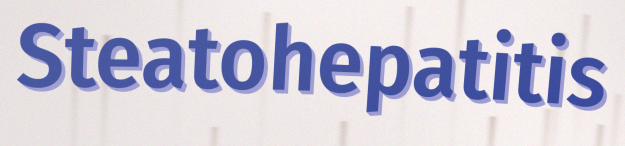
Steatohepatitis